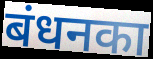
बंधनका